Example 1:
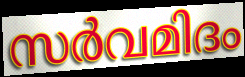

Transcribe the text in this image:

സർവമിദം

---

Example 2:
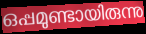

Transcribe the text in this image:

ഒപ്പമുണ്ടായിരുന്നു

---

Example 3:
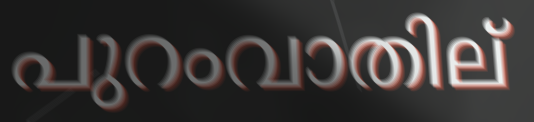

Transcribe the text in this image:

പുറംവാതില്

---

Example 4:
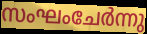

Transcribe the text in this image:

സംഘംചേർന്നു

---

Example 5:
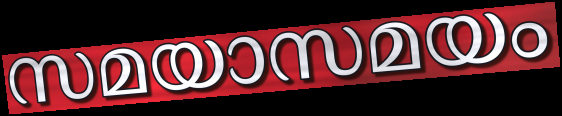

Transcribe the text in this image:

സമയാസമയം